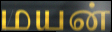
மயன்